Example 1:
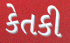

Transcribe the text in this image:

કેતકી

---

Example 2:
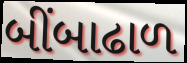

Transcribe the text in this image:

બીંબાઢાળ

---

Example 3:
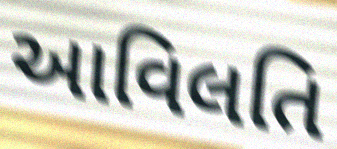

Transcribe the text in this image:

આવિલતિ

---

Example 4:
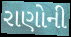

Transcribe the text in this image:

રાણોની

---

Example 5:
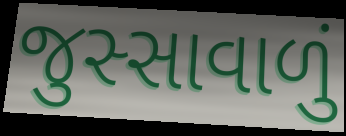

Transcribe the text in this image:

જુસ્સાવાળું